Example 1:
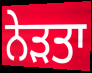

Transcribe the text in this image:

ਨੇੜਤਾ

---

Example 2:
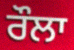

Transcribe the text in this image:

ਰੌਲਾ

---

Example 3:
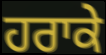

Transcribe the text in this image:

ਹਰਾਕੇ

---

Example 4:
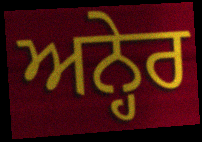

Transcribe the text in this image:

ਅਨ੍ਹੇਰ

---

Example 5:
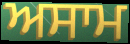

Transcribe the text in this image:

ਅਸਾਮ